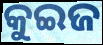
କୁଇଜ